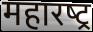
महारष्ट्र